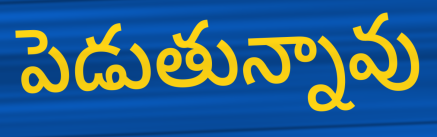
పెడుతున్నావు